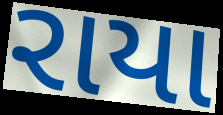
રાયા